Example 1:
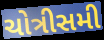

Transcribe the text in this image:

ચોત્રીસમી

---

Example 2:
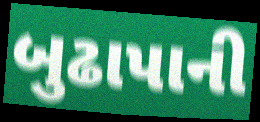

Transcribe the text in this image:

બુઢાપાની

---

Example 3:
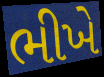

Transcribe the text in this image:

ભીખે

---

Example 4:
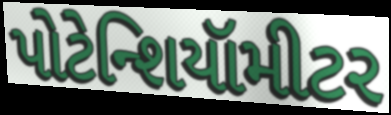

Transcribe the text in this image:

પોટેન્શિયૉમીટર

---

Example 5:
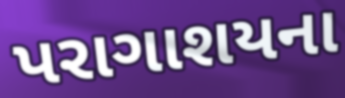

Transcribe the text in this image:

પરાગાશયના